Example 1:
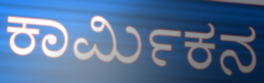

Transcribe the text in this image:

ಕಾರ್ಮಿಕನ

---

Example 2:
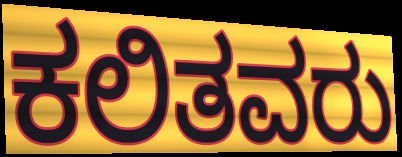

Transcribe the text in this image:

ಕಲಿತವರು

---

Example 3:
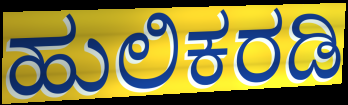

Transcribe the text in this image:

ಹುಲಿಕರಡಿ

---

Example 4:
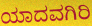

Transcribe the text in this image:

ಯಾದವಗಿರಿ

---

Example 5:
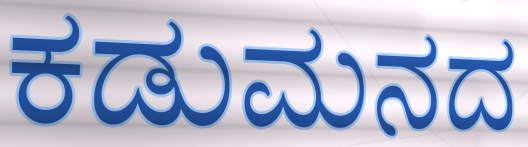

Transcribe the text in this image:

ಕಡುಮನದ